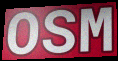
OSM